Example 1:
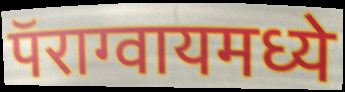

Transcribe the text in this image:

पॅराग्वायमध्ये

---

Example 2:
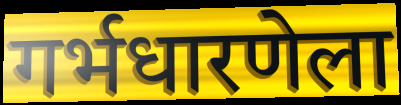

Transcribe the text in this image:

गर्भधारणेला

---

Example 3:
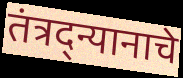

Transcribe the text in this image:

तंत्रद्न्यानाचे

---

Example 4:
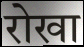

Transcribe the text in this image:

रोखा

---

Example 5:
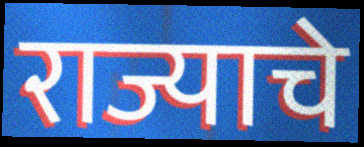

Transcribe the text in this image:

राज्याचे